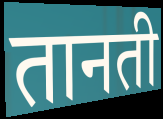
तानती